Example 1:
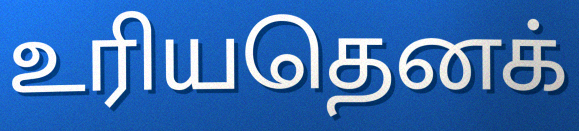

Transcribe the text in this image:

உரியதெனக்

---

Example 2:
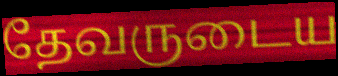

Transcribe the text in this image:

தேவருடைய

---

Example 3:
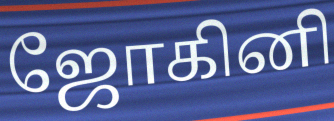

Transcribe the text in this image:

ஜோகினி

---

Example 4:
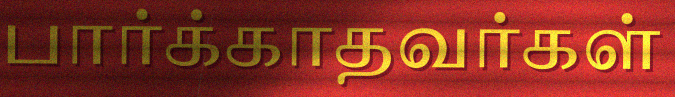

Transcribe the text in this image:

பார்க்காதவர்கள்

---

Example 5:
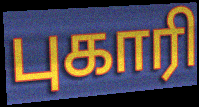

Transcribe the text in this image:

புகாரி